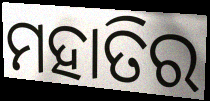
ମହାତିର